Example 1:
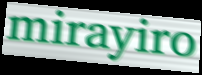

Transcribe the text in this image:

mirayiro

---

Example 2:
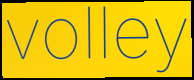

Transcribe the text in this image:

volley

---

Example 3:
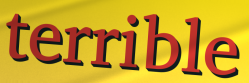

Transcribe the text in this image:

terrible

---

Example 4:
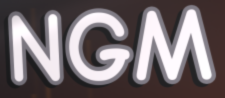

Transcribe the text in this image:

NGM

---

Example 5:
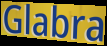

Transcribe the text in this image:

Glabra